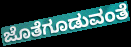
ಜೊತೆಗೂಡುವಂತೆ